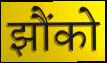
झौंको